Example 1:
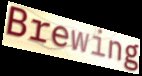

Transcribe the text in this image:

Brewing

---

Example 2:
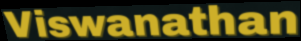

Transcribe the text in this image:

Viswanathan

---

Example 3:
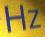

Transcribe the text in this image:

Hz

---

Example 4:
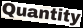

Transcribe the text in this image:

Quantity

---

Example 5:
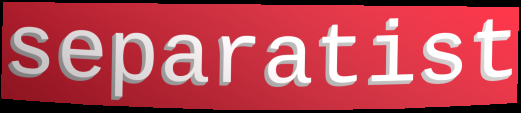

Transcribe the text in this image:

separatist